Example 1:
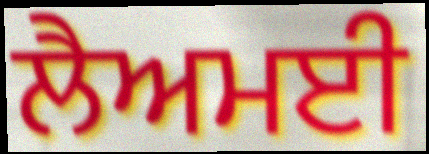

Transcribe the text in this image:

ਲੈਅਮਈ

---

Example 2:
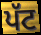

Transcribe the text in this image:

ਪੱਟ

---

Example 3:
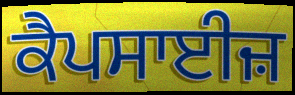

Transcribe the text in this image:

ਕੈਪਸਾਈਜ਼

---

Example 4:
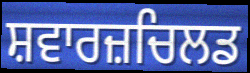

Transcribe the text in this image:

ਸ਼ਵਾਰਜ਼ਚਿਲਡ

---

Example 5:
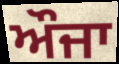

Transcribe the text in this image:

ਔਜਾ